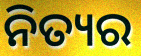
ନିତ୍ୟର